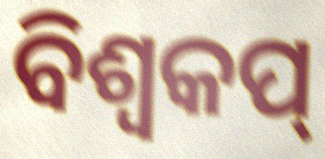
ବିଶ୍ୱକପ୍